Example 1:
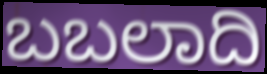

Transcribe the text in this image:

ಬಬಲಾದಿ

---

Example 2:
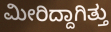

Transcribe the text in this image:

ಮೀರಿದ್ದಾಗಿತ್ತು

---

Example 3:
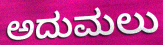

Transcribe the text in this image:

ಅದುಮಲು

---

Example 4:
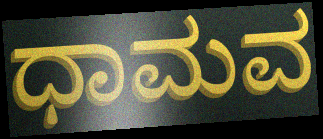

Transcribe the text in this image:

ಧಾಮವ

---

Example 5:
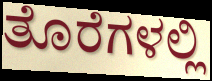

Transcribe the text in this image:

ತೊರೆಗಳಲ್ಲಿ